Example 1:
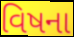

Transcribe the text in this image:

વિષના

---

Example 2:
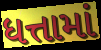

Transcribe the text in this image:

ધત્તામાં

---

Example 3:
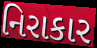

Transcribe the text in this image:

નિરાકાર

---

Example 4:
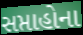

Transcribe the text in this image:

સપ્તાહોના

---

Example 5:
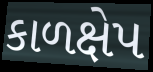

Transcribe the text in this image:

કાળક્ષેપ